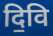
दि॒वि